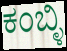
ಕಂಬ್ಳಿ